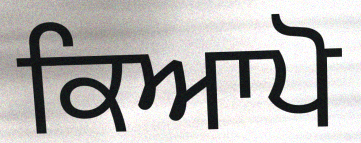
ਕਿਆਪੋ